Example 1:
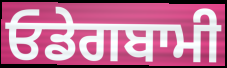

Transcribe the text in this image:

ਓਡੇਗਬਾਮੀ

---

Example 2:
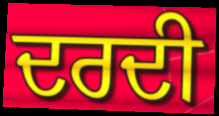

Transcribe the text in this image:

ਦਰਦੀ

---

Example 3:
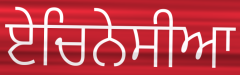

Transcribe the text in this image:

ਏਚਿਨੇਸੀਆ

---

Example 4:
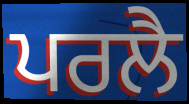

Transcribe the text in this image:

ਪਰਲੈ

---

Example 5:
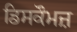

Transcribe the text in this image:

ਡਿਸਕੌਮਜ਼